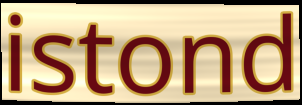
istond